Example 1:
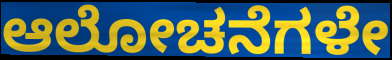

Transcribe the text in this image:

ಆಲೋಚನೆಗಳೇ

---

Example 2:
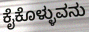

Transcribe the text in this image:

ಕೈಕೊಳ್ಳುವನು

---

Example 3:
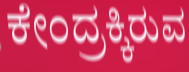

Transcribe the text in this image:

ಕೇಂದ್ರಕ್ಕಿರುವ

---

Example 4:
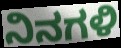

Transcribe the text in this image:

ನಿನಗಳಿ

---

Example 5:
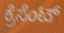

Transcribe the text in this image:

ಕ್ರೆಸೆಂಟ್